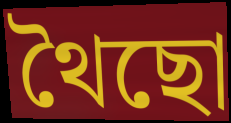
থৈছো